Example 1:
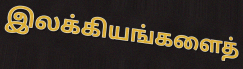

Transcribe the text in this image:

இலக்கியங்களைத்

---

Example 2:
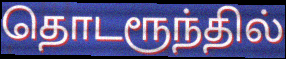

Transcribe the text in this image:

தொடரூந்தில்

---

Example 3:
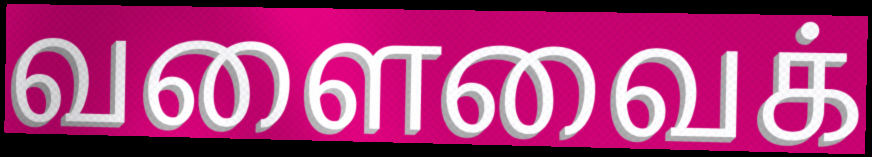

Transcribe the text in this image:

வளைவைக்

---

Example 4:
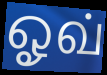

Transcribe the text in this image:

ஓவ்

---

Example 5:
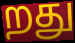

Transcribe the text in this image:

றது